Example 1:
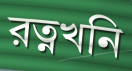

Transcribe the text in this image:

রত্নখনি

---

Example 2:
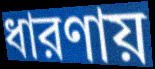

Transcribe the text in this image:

ধারণায়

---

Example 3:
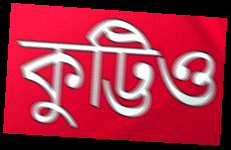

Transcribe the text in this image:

কুট্টিও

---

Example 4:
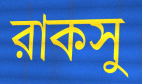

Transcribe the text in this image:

রাকসু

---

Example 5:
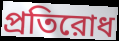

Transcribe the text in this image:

প্রতিরোধ